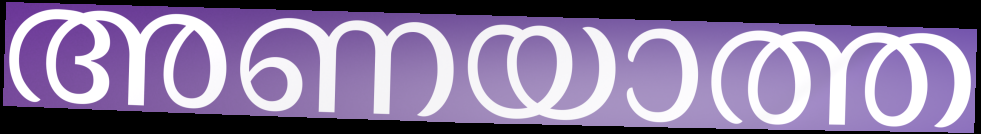
അണയാത്ത